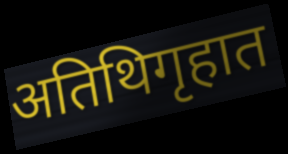
अतिथिगृहात